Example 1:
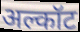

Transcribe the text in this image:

अल्कॉट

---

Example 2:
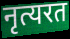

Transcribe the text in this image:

नृत्यरत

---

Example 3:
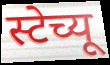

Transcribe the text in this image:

स्टेच्यू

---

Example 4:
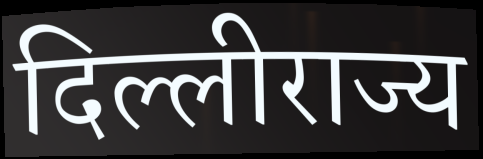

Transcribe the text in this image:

दिल्लीराज्य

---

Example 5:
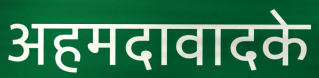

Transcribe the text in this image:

अहमदावादके